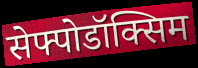
सेफ्पोडॉक्सिम